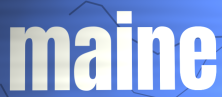
maine